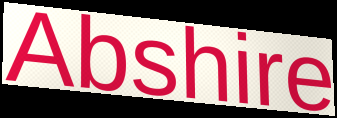
Abshire